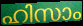
ഹിസാം